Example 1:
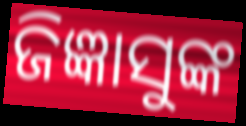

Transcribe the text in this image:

ଜିଜ୍ଞାସୁଙ୍କ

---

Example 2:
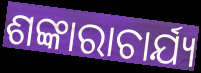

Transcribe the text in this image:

ଶଙ୍କାରାଚାର୍ଯ୍ୟ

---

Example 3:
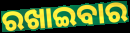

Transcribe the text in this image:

ରଖାଇବାର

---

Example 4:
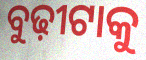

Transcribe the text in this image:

ବୁଢ଼ୀଟାକୁ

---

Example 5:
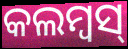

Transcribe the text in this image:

କଲମ୍ବସ୍